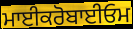
ਮਾਈਕਰੋਬਾਈਓਮ